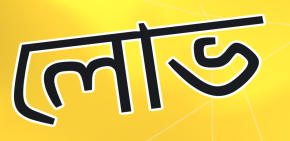
লোভ